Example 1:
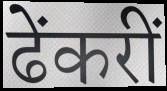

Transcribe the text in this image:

ढेंकरीं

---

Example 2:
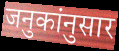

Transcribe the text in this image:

जनुकांनुसार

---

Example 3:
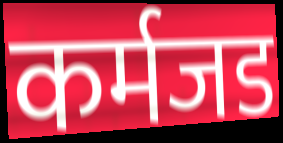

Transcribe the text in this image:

कर्मजड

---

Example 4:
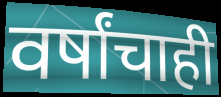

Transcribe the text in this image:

वर्षांचाही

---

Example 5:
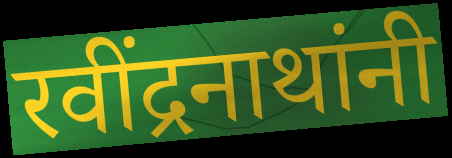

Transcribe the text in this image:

रवींद्रनाथांनी